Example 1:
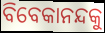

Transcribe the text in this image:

ବିବେକାନନ୍ଦକୁ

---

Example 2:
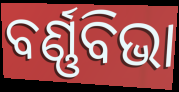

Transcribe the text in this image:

ବର୍ଣ୍ଣବିଭା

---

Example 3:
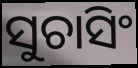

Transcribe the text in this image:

ସୁଚାସିଂ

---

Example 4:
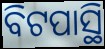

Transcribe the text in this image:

ବିଟପାସ୍ଥି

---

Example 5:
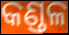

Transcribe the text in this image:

କଣ୍ଡଳ